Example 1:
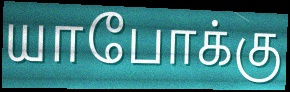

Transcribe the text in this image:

யாபோக்கு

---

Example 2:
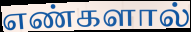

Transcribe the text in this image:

எண்களால்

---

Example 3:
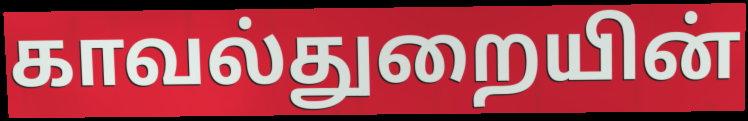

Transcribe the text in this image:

காவல்துறையின்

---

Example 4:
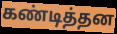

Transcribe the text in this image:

கண்டித்தன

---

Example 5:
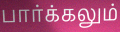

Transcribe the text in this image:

பார்க்கலும்